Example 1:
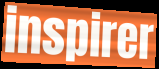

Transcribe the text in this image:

inspirer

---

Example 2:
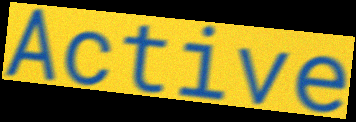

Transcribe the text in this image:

Active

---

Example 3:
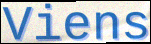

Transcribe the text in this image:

Viens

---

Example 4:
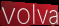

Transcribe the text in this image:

volva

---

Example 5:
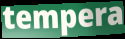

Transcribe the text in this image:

tempera